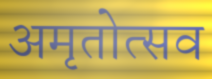
अमृतोत्सव